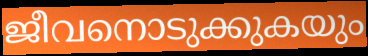
ജീവനൊടുക്കുകയും